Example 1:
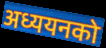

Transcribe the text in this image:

अध्ययनको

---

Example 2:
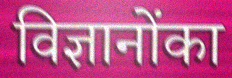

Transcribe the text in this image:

विज्ञानोंका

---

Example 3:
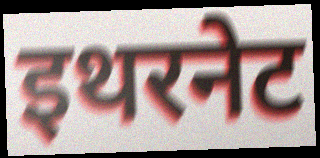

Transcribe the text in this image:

इथरनेट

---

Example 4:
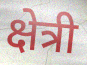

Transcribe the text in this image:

क्षेत्री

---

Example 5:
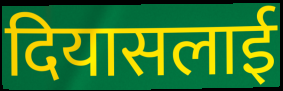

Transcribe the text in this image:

दियासलाई